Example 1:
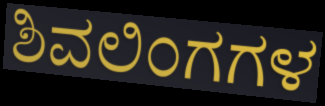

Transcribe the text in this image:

ಶಿವಲಿಂಗಗಳ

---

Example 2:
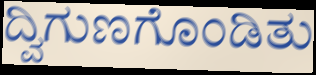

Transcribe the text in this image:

ದ್ವಿಗುಣಗೊಂಡಿತು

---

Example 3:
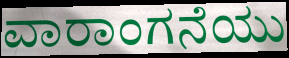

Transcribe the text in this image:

ವಾರಾಂಗನೆಯು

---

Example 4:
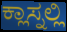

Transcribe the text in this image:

ಕ್ಲಾಸ್ನಲ್ಲಿ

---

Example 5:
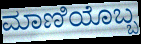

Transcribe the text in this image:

ಮಾಣಿಯೊಬ್ಬ